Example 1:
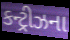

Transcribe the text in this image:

કન્ટ્રીઝના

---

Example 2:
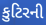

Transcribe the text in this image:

કુટિરની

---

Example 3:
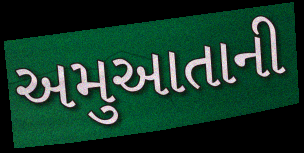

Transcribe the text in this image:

અમુઆતાની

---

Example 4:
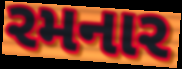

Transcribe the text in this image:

રમનાર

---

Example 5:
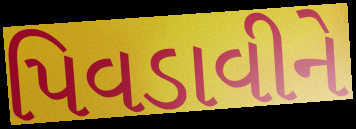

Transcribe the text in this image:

પિવડાવીને